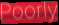
Poorly